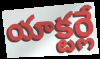
యాక్టర్లే